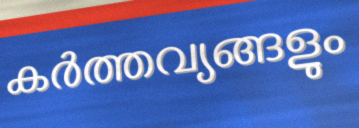
കർത്തവ്യങ്ങളും